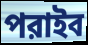
পরাইব